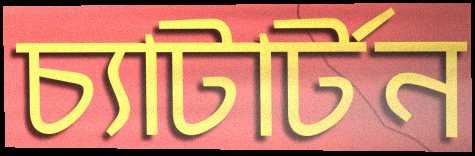
চ্যাটার্টন